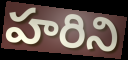
హరిని